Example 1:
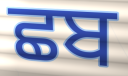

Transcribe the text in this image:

ਛਬ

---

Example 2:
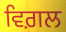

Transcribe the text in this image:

ਵਿਗ਼ਲ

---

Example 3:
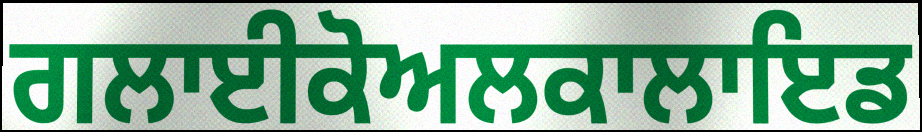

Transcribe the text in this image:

ਗਲਾਈਕੋਅਲਕਾਲਾਇਡ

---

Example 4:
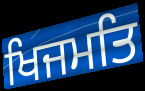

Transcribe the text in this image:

ਖਿਜਮਤਿ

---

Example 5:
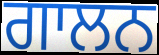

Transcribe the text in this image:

ਗਾਲਨ